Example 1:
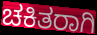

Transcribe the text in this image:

ಚಕಿತರಾಗಿ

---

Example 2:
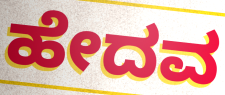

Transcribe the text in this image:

ಹೇದವ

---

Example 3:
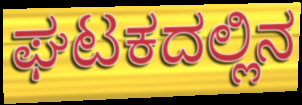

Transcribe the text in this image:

ಘಟಕದಲ್ಲಿನ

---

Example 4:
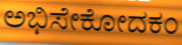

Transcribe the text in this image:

ಅಭಿಸೇಕೋದಕಂ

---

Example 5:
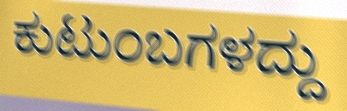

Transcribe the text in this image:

ಕುಟುಂಬಗಳದ್ದು